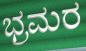
ಭ್ರಮರ